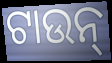
ଟାଉନ୍